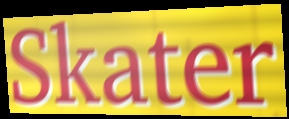
Skater